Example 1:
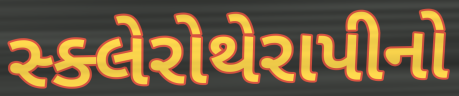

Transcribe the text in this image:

સ્ક્લેરોથેરાપીનો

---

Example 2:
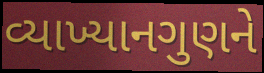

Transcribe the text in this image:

વ્યાખ્યાનગુણને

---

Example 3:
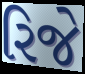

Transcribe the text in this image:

રિજે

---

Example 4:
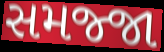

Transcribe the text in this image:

સમજ્જા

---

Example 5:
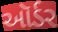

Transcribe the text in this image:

ઑર્ડર